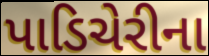
પાડિચેરીના